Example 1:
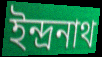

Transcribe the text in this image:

ইন্দ্ৰনাথ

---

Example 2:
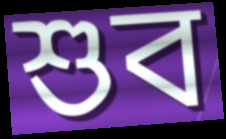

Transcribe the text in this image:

শুব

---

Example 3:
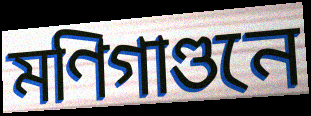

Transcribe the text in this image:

মণিগাণ্ডনে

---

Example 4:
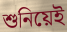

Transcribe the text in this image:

শুনিয়েই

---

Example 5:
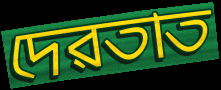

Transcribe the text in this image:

দেৱতাত